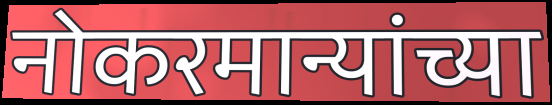
नोकरमान्यांच्या